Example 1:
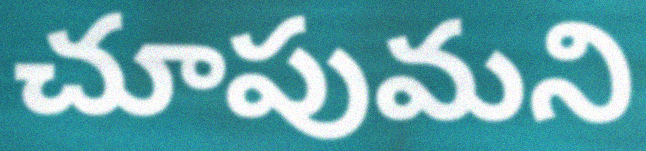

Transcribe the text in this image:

చూపుమని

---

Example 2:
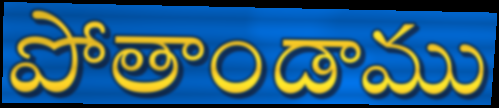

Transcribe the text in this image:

పోతాండాము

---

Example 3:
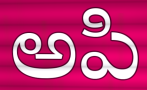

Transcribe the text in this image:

అపి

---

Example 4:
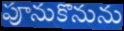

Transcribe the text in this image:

పూనుకొనును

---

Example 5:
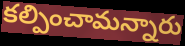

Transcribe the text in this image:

కల్పించామన్నారు